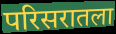
परिसरातला